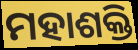
ମହାଶକ୍ତି